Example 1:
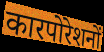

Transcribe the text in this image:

कारपोरेशनों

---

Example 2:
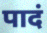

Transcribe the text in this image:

पादं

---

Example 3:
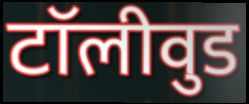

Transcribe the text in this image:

टॉलीवुड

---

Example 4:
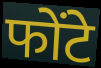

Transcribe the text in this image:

फोंटे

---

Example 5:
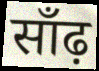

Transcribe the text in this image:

साँढ़